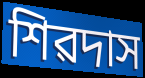
শিৱদাস